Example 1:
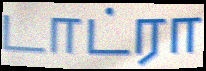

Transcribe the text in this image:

டாட்ரா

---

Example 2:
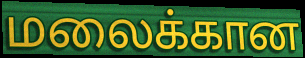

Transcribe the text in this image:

மலைக்கான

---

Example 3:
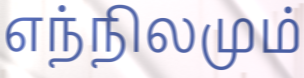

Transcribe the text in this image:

எந்நிலமும்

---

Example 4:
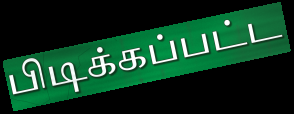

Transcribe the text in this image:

பிடிக்கப்பட்ட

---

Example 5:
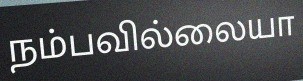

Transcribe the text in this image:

நம்பவில்லையா